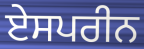
ਏਸਪਰੀਨ